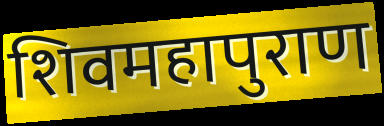
शिवमहापुराण